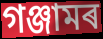
গঞ্জামৰ